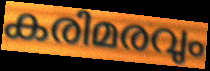
കരിമരവും